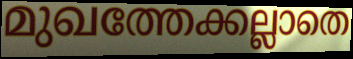
മുഖത്തേക്കല്ലാതെ